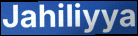
Jahiliyya